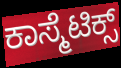
ಕಾಸ್ಮೆಟಿಕ್ಸ್